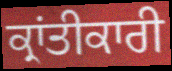
ਕ੍ਰਾਂਤੀਕਾਰੀ